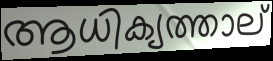
ആധിക്യത്താല്